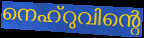
നെഹ്റുവിന്റെ